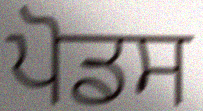
ਪੋਡਸ